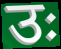
उः